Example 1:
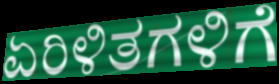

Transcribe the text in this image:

ಏರಿಳಿತಗಳಿಗೆ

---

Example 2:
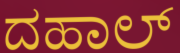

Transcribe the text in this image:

ದಹಾಲ್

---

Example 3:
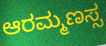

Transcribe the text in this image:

ಆರಮ್ಮಣಸ್ಸ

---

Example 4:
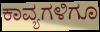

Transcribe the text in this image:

ಕಾವ್ಯಗಳಿಗೂ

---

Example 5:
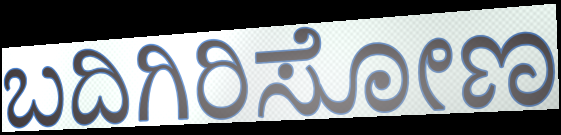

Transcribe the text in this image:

ಬದಿಗಿರಿಸೋಣ